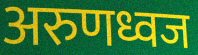
अरुणध्वज